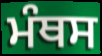
ਮੰਥਸ